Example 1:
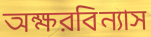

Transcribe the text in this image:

অক্ষরবিন্যাস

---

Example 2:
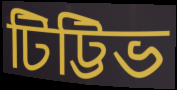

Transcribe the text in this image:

টিট্টিভ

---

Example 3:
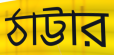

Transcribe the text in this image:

ঠাট্টার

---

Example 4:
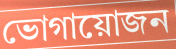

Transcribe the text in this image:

ভোগায়োজন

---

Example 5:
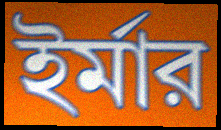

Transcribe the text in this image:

ইর্মার